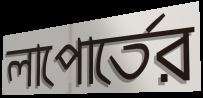
লাপোর্তের